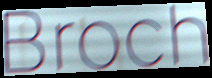
Broch